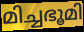
മിച്ചഭൂമി